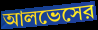
আলভেসের